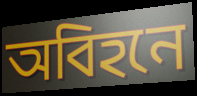
অবিহনে